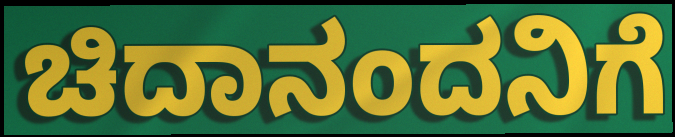
ಚಿದಾನಂದನಿಗೆ